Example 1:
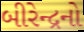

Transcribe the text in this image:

બીરેન્દ્રનો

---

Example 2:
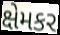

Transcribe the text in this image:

ક્ષેમકર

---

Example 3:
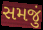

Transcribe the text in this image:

સમજું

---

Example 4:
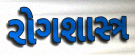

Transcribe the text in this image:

રોગશાસ્ત્ર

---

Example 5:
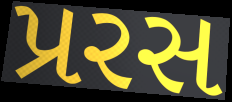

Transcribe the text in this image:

પ્રરસ